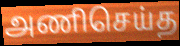
அணிசெய்த